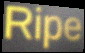
Ripe